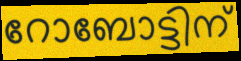
റോബോട്ടിന്